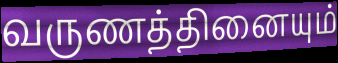
வருணத்தினையும்